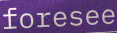
foresee